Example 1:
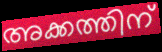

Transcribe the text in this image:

അക്കത്തിന്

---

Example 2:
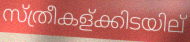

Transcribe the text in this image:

സ്ത്രീകള്ക്കിടയില്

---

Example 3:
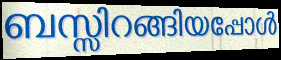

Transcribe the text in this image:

ബസ്സിറങ്ങിയപ്പോൾ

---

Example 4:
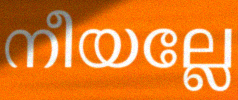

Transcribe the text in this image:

നീയല്ലേ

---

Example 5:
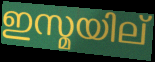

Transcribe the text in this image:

ഇസ്മയില്